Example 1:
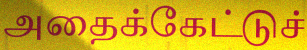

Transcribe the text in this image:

அதைக்கேட்டுச்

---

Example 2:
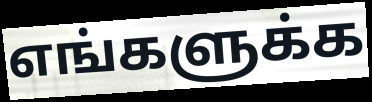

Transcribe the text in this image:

எங்களுக்க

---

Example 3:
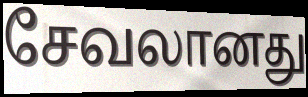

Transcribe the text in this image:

சேவலானது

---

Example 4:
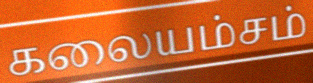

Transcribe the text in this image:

கலையம்சம்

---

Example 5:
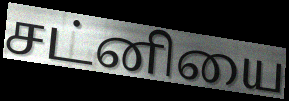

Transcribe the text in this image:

சட்னியை